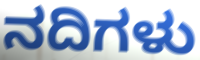
ನದಿಗಳು